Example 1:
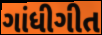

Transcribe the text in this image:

ગાંધીગીત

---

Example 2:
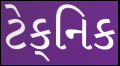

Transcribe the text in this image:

ટેક્‌નિક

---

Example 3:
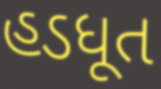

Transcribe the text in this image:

હડધૂત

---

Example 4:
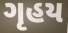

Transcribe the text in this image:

ગૃહય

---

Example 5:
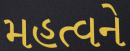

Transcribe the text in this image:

મહત્વને